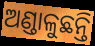
ଅଣ୍ଡାଳୁଛନ୍ତି